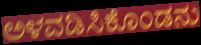
ಅಳವಡಿಸಿಕೊಂಡನು